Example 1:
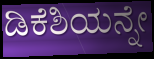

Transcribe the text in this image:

ಡಿಕೆಶಿಯನ್ನೇ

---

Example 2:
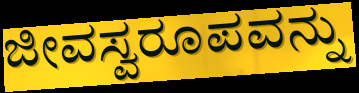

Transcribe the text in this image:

ಜೀವಸ್ವರೂಪವನ್ನು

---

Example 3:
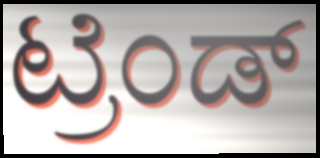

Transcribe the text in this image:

ಟ್ರೆಂಡ್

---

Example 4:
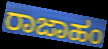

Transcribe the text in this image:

ರಾಜಾಹಂ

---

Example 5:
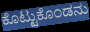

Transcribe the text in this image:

ಕೊಟ್ಟುಕೊಂಡನು